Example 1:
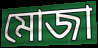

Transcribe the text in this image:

মোজা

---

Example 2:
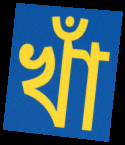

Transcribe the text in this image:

খাঁ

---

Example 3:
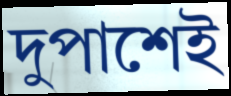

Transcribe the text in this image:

দুপাশেই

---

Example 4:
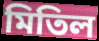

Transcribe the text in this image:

মিতিল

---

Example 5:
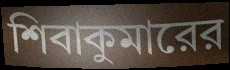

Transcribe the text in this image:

শিবাকুমারের